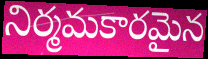
నిర్మమకారమైన